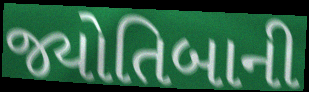
જ્યોતિબાની